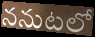
ననుటలో